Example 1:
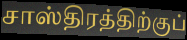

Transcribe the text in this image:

சாஸ்திரத்திற்குப்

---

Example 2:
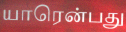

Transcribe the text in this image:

யாரென்பது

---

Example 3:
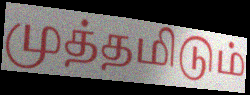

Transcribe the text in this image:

முத்தமிடும்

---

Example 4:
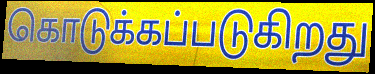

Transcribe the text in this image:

கொடுக்கப்படுகிறது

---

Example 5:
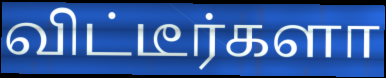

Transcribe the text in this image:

விட்டீர்களா